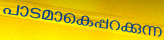
പാടമാകെപ്പറക്കുന്ന